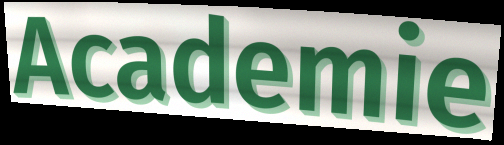
Academie